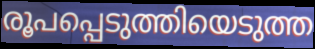
രൂപപ്പെടുത്തിയെടുത്ത